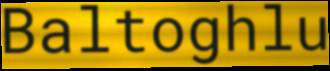
Baltoghlu